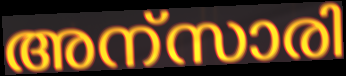
അന്സാരി